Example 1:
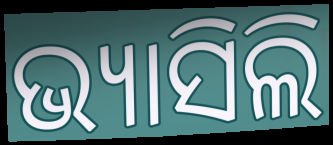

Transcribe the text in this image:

ଭ୍ୟାସିଲି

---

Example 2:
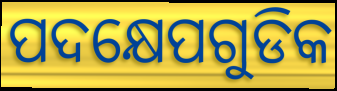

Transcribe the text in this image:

ପଦକ୍ଷେପଗୁଡିକ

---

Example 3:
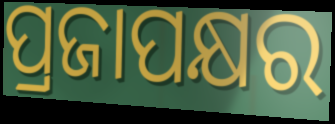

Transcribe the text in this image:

ପ୍ରଜାପକ୍ଷର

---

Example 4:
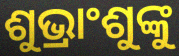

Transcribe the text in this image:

ଶୁଭ୍ରାଂଶୁଙ୍କୁ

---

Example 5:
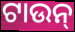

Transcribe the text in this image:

ଟାଉନ୍